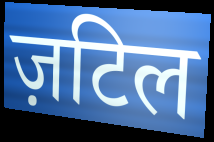
ज़टिल